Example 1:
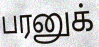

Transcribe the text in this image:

பரனுக்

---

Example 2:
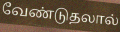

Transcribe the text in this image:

வேண்டுதலால்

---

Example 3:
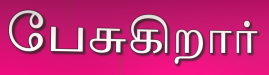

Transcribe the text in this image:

பேசுகிறார்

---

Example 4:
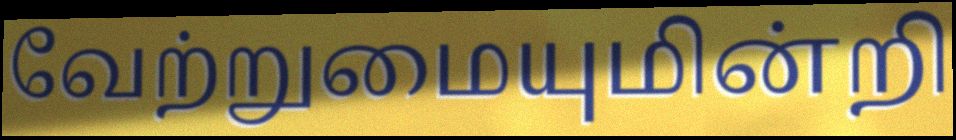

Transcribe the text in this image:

வேற்றுமையுமின்றி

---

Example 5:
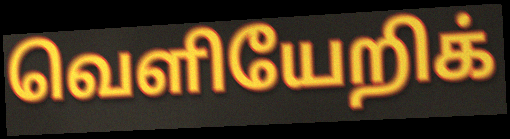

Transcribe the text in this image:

வெளியேறிக்